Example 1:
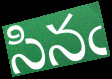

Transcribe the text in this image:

సినఁ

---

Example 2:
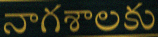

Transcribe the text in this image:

నాగశాలకు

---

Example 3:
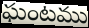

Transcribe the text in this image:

ఘంటము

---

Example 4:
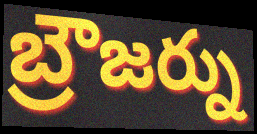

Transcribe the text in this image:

బ్రౌజర్ను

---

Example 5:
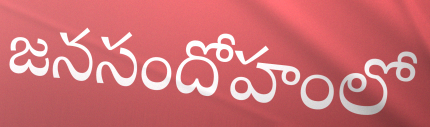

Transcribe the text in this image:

జనసందోహంలో